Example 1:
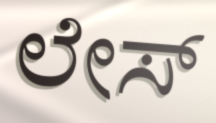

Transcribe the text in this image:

ಲೇಸ್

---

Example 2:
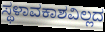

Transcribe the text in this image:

ಸ್ಥಳಾವಕಾಶವಿಲ್ಲದ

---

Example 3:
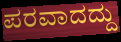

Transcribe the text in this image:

ಪರವಾದದ್ದು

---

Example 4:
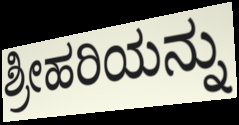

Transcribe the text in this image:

ಶ್ರೀಹರಿಯನ್ನು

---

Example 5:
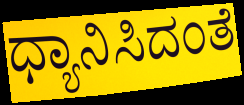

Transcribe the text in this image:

ಧ್ಯಾನಿಸಿದಂತೆ